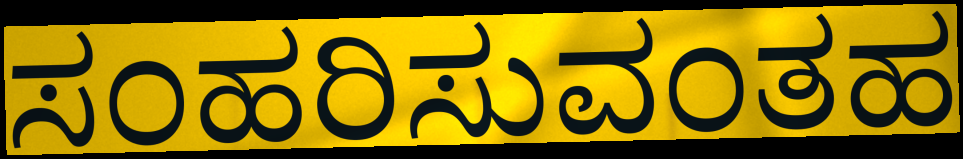
ಸಂಹರಿಸುವಂತಹ